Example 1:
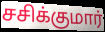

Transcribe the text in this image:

சசிக்குமார்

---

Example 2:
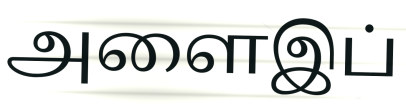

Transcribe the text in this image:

அளைஇப்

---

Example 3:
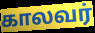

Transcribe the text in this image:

காலவர்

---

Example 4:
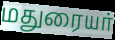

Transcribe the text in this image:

மதுரையர்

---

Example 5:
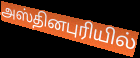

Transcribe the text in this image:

அஸ்தினபுரியில்